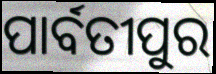
ପାର୍ବତୀପୁର